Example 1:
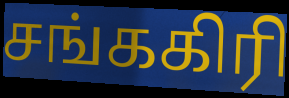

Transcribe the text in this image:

சங்ககிரி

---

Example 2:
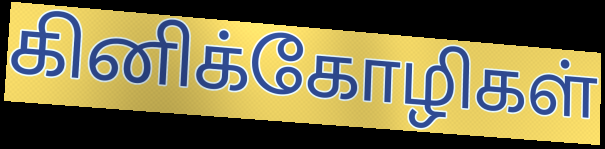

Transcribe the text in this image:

கினிக்கோழிகள்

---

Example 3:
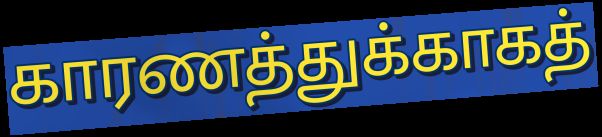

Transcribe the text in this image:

காரணத்துக்காகத்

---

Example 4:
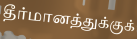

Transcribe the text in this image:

தீர்மானத்துக்குக்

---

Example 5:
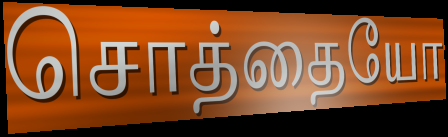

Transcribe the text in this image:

சொத்தையோ